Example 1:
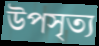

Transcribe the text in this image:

উপসৃত্য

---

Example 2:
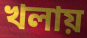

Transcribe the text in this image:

খলায়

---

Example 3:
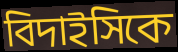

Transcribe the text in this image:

বিদাইসিকে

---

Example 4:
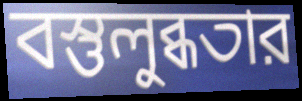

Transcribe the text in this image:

বস্তুলুব্ধতার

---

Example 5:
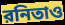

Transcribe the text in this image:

রনিতাও